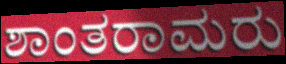
ಶಾಂತರಾಮರು